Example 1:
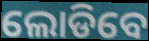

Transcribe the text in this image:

ଲୋଡିବେ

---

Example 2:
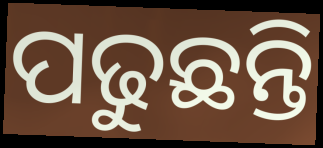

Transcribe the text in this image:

ପଢୁଛନ୍ତି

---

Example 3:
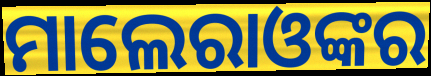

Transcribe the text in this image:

ମାଲେରାଓଙ୍କର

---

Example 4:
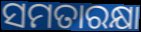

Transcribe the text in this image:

ସମତାରକ୍ଷା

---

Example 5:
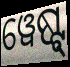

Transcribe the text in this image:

ୱେଷ୍ଟ୍